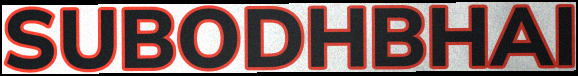
SUBODHBHAI